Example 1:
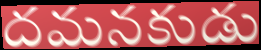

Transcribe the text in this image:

దమనకుడు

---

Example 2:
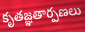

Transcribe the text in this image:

కృతజ్ఞతార్పణలు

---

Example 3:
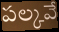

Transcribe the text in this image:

పల్కవే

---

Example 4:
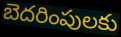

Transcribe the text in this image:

బెదరింపులకు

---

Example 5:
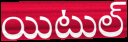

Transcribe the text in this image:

యిటుల్